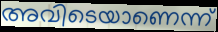
അവിടെയാണെന്ന്